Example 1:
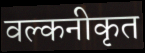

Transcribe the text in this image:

वल्कनीकृत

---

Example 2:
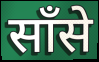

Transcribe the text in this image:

साँसे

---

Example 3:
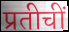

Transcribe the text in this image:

प्रतीचीं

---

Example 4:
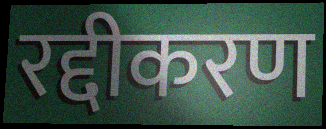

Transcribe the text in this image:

रद्दीकरण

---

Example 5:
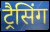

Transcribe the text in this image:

ट्रैसिंग